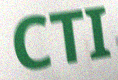
CTI